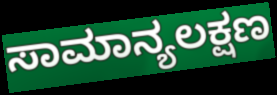
ಸಾಮಾನ್ಯಲಕ್ಷಣ